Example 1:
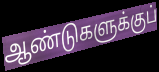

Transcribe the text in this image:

ஆண்டுகளுக்குப்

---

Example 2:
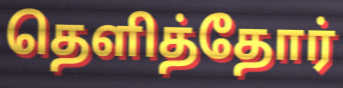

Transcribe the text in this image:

தெளித்தோர்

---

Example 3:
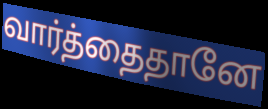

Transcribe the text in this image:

வார்த்தைதானே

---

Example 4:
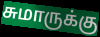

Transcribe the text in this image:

சுமாருக்கு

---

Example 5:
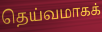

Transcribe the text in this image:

தெய்வமாகக்